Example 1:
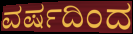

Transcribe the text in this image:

ವರ್ಷದಿಂದ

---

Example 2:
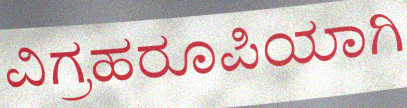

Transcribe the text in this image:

ವಿಗ್ರಹರೂಪಿಯಾಗಿ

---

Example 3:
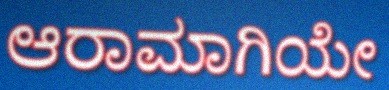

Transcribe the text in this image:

ಆರಾಮಾಗಿಯೇ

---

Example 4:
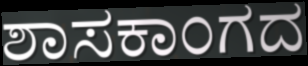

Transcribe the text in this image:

ಶಾಸಕಾಂಗದ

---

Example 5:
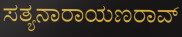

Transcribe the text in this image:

ಸತ್ಯನಾರಾಯಣರಾವ್